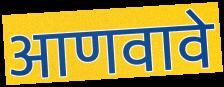
आणवावे